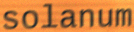
solanum